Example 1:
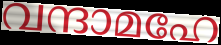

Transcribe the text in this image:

വന്ദാമഹേ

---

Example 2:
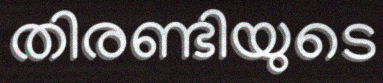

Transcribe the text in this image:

തിരണ്ടിയുടെ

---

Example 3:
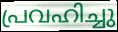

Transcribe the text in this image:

പ്രവഹിച്ചു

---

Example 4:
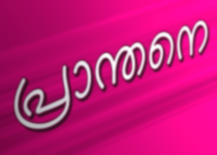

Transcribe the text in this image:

പ്രാന്തനെ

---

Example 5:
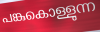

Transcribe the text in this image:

പങ്കുകൊള്ളുന്ന